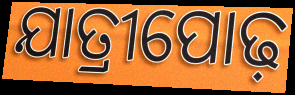
ଯାତ୍ରୀପୋଢ଼